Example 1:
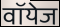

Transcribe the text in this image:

वॉयेज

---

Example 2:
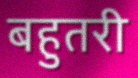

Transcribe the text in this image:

बहुतरी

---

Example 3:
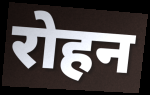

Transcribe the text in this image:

रोहन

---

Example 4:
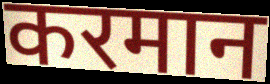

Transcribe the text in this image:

करमान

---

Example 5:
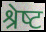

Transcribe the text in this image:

श्रेष्‍ट